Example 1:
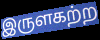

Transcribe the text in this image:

இருளகற்ற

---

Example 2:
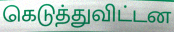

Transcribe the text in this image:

கெடுத்துவிட்டன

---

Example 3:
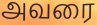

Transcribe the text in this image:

அவரை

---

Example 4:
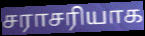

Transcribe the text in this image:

சராசரியாக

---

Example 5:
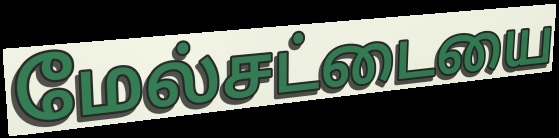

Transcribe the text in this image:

மேல்சட்டையை